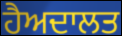
ਹੈਅਦਾਲਤ